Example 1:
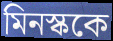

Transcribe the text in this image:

মিনস্ককে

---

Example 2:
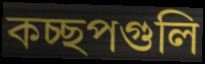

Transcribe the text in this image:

কচ্ছপগুলি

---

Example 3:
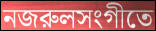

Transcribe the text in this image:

নজরুলসংগীতে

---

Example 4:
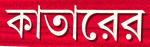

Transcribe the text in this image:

কাতারের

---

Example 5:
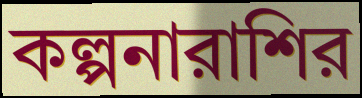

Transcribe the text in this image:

কল্পনারাশির